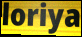
loriya